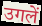
उगलें